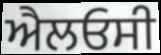
ਐਲਓਸੀ